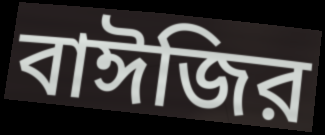
বাঈজির